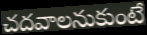
చదవాలనుకుంటే